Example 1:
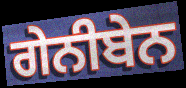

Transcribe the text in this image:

ਗੇਨੀਬੇਨ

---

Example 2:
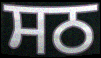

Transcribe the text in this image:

ਸਠ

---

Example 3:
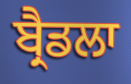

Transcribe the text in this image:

ਬ੍ਰੈਡਲਾ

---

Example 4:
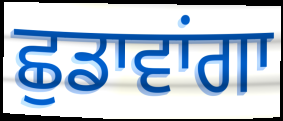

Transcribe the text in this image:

ਛੁਡਾਵਾਂਗਾ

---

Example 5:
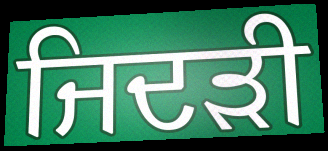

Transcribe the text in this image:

ਜਿਦੜੀ